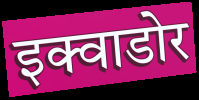
इक्‍वाडोर